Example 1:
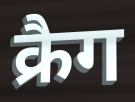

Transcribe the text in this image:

क्रैग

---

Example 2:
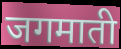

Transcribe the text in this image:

जगमाती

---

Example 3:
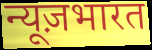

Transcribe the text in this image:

न्यूज़भारत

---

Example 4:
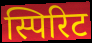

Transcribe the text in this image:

स्पिरिट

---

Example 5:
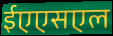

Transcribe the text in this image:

ईएएसएल